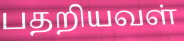
பதறியவள்